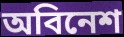
অবিনেশ